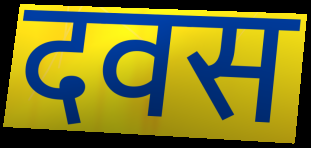
दवस